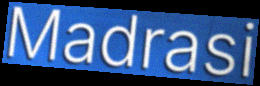
Madrasi